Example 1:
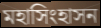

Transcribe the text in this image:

মহাসিংহাসন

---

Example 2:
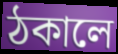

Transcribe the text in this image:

ঠকালে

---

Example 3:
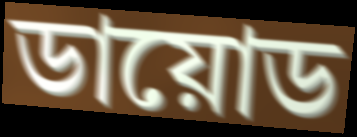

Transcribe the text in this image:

ডায়োড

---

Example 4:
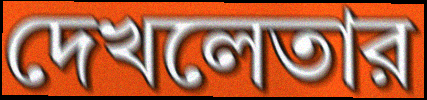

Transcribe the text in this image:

দেখলেতার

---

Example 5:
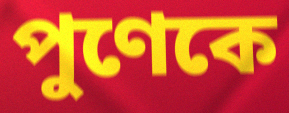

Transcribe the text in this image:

পুণেকে